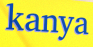
kanya